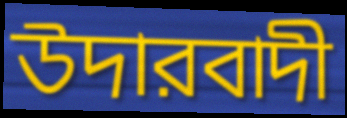
উদারবাদী